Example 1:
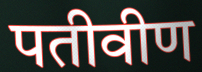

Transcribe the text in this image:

पतीवीण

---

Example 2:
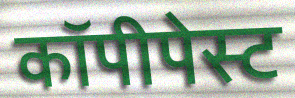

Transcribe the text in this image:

कॉपीपेस्ट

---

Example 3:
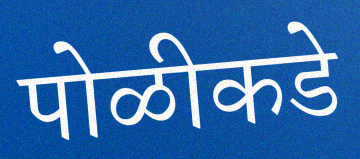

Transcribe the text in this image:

पोळीकडे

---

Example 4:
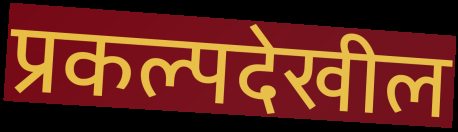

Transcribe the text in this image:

प्रकल्पदेखील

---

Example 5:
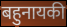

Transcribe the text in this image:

बहुनायकी